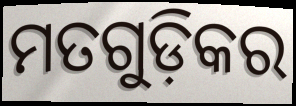
ମତଗୁଡ଼ିକର